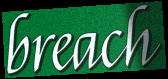
breach